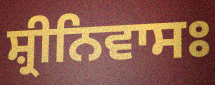
ਸ਼੍ਰੀਨਿਵਾਸਃ